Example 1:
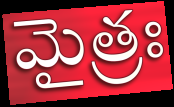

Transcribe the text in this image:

మైత్రః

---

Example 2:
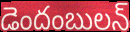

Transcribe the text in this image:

డెందంబులన్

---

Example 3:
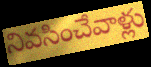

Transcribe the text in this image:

నివసించేవాళ్లు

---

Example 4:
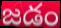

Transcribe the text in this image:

జడం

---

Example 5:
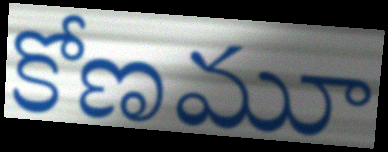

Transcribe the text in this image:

కోణమూ